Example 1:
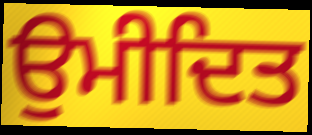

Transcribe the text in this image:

ਉਮੀਦਿਤ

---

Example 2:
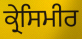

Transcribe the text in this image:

ਕ੍ਰੇਸਿਮੀਰ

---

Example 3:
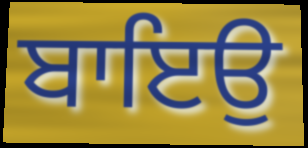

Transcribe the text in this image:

ਬਾਇਉ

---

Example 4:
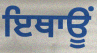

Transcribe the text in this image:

ਇਥਾਊਂ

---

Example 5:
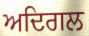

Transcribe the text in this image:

ਅਦਿਗਲ